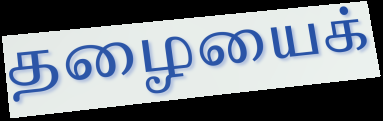
தழையைக்